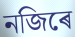
নজিৰে